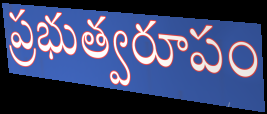
ప్రభుత్వరూపం